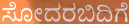
ಸೋದರಬಿದಿಗೆ